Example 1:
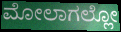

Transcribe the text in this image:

ಮೋಲಾಗಲ್ಲೋ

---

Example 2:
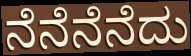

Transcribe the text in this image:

ನೆನೆನೆನೆದು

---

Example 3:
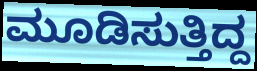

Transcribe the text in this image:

ಮೂಡಿಸುತ್ತಿದ್ದ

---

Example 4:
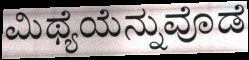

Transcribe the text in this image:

ಮಿಥ್ಯೆಯೆನ್ನುವೊಡೆ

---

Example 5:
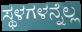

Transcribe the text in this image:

ಸ್ಥಳಗಳನ್ನೆಲ್ಲ